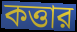
কত্তার